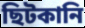
ছিটকানি